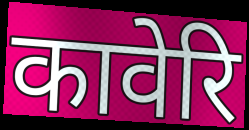
कावेरि